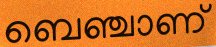
ബെഞ്ചാണ്